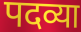
पदव्या